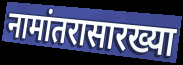
नामांतरासारख्या